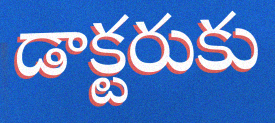
డాక్టరుకు